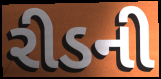
રીડની